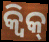
କ୍ୱିକ୍